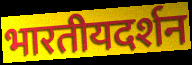
भारतीयदर्शन